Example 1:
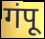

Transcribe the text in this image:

गंपू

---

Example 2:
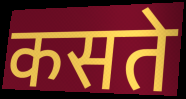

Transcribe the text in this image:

कसते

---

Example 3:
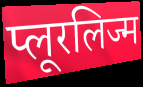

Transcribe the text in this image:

प्लूरलिज्म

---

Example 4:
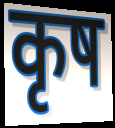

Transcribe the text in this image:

कृष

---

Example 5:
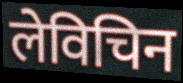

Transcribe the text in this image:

लेविचिन